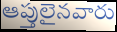
ఆప్తులైనవారు